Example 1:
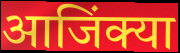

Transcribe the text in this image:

आजिंक्या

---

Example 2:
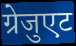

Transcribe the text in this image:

ग्रेजुएट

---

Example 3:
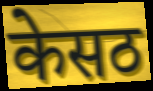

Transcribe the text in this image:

केसठ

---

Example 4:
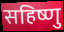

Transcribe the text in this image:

सहिष्णु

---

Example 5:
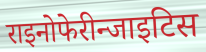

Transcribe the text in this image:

राइनोफेरीन्जाइटिस